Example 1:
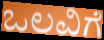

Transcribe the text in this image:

ಒಲವಿಗೆ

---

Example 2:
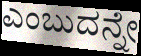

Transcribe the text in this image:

ಎಂಬುದನ್ನೇ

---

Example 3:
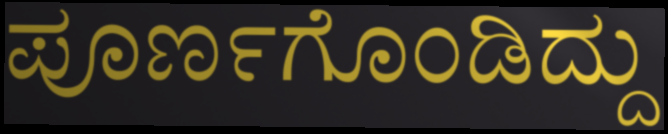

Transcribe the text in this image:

ಪೂರ್ಣಗೊಂಡಿದ್ದು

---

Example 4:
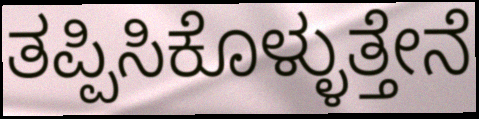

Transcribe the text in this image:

ತಪ್ಪಿಸಿಕೊಳ್ಳುತ್ತೇನೆ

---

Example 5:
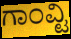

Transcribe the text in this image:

ಗಾಂವ್ಟಿ